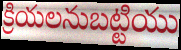
క్రియలనుబట్టియు